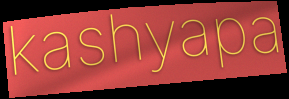
kashyapa